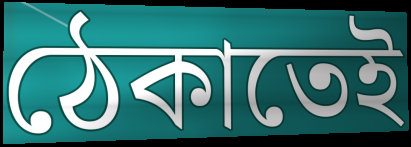
ঠেকাতেই